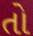
તો